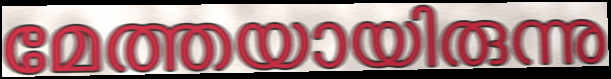
മേത്തയായിരുന്നു